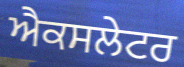
ਐਕਸਲੇਟਰ